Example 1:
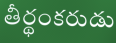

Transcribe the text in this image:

తీర్థంకరుడు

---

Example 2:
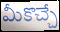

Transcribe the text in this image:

మీకొచ్చే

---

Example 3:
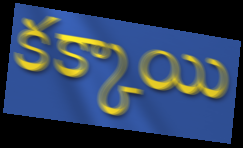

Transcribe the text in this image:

కక్కాయి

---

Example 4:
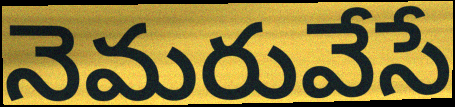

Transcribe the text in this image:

నెమరువేసే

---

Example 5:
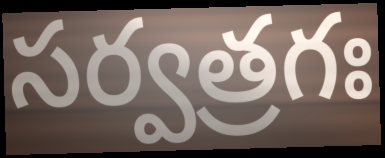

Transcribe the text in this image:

సర్వత్రగః